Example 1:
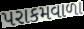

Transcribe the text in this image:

પરાકમવાળા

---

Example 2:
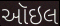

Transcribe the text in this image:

ઑઇલ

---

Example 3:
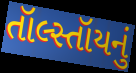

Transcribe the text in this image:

તૉલ્સ્તૉયનું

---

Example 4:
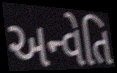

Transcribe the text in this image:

અન્વેતિ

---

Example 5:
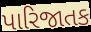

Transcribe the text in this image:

પારિજાતક